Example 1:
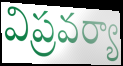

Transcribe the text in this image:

విప్రవర్యా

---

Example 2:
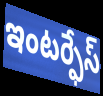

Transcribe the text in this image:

ఇంటర్ఫేస్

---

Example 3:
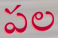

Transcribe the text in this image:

పల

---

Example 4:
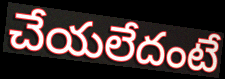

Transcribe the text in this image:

చేయలేదంటే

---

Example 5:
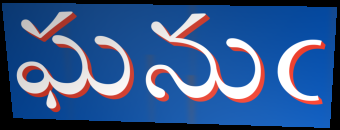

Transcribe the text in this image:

ఘనుఁ